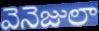
వెనెజులా